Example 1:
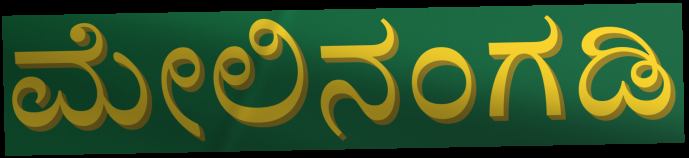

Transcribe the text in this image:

ಮೇಲಿನಂಗಡಿ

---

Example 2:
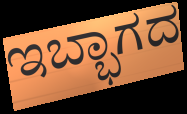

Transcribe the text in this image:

ಇಬ್ಭಾಗದ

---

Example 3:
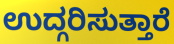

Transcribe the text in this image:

ಉದ್ಗರಿಸುತ್ತಾರೆ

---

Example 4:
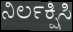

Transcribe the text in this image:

ನಿರ್ಲಕ್ಷಿಸಿ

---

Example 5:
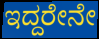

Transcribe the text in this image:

ಇದ್ದರೇನೇ